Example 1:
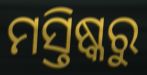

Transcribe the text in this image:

ମସ୍ତିଷ୍କରୁ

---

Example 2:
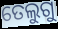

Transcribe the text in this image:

ତେଲୁଗୁ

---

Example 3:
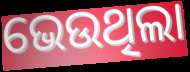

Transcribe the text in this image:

ଭେଉଥିଲା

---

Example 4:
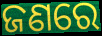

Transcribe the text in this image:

ଜଣରେ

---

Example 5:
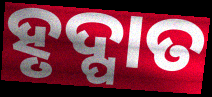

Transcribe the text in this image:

ହୃଦ୍ପାତ